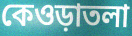
কেওড়াতলা